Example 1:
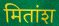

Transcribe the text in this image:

मितांश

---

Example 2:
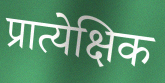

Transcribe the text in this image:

प्रात्येक्षिक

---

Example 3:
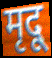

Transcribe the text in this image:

मृदू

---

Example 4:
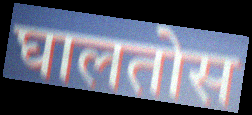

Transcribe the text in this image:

घालतोस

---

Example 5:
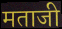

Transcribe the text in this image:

मताजी